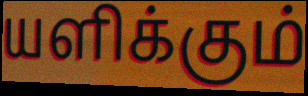
யளிக்கும்